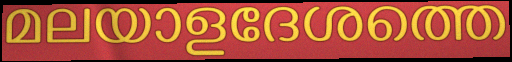
മലയാളദേശത്തെ